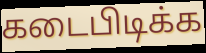
கடைபிடிக்க